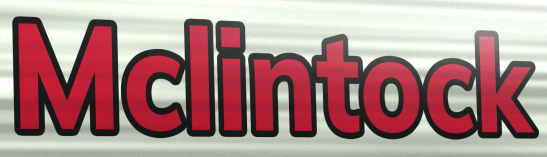
Mclintock